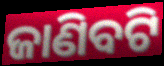
ଜାଣିବଟି